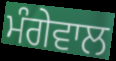
ਮੰਗੇਵਾਲ